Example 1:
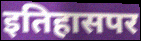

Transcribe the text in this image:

इतिहासपर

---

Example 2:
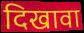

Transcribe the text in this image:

दिखावा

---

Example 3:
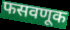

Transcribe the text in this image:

फसवणूक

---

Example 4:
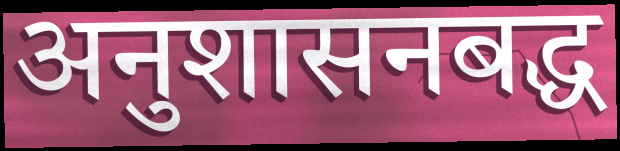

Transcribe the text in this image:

अनुशासनबद्ध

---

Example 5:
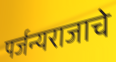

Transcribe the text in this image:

पर्जन्यराजाचे